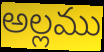
అల్లము